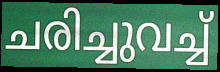
ചരിച്ചുവച്ച്